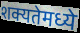
शक्यतेमध्ये